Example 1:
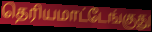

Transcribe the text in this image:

தெரியமாட்டேங்குது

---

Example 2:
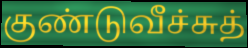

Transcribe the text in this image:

குண்டுவீச்சுத்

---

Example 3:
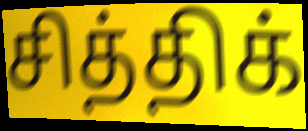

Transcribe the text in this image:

சித்திக்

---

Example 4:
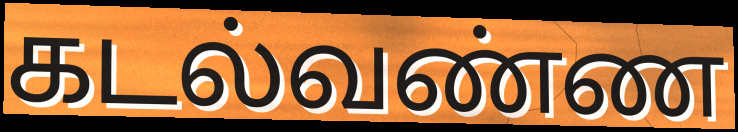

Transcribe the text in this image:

கடல்வண்ண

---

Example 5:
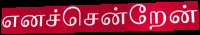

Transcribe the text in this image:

எனச்சென்றேன்